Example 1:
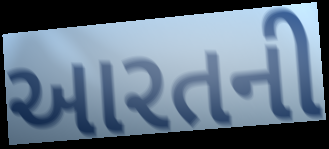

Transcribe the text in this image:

આરતની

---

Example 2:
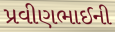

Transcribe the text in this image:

પ્રવીણભાઈની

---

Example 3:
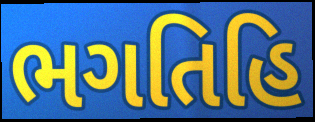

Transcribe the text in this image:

ભગતિહિ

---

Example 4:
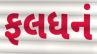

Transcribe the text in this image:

ફલધનં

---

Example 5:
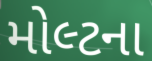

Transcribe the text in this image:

મોલ્ટના